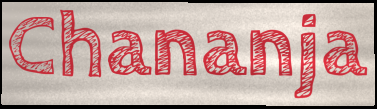
Chananja